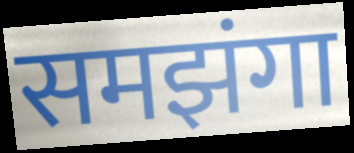
समझंगा